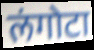
लंगोटा